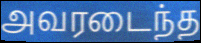
அவரடைந்த